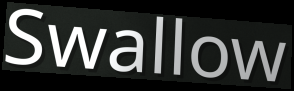
Swallow